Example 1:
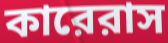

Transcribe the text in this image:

কারেরাস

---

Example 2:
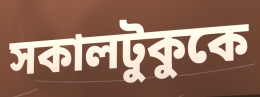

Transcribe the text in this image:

সকালটুকুকে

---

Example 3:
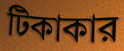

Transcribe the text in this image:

টিকাকার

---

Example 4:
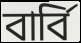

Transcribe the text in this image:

বার্বি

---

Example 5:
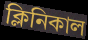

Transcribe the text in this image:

ক্লিনিকাল